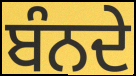
ਬੰਨਦੇ